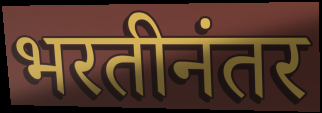
भरतीनंतर